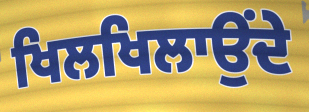
ਖਿਲਖਿਲਾਉਂਦੇ